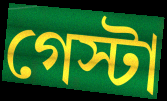
গেস্টা